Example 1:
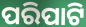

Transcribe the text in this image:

ପରିପାଟି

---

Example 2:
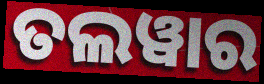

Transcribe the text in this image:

ତଲୱାର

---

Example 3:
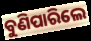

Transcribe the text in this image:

ବୁଣିପାରିଲେ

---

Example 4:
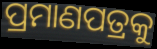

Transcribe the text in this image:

ପ୍ରମାଣପତ୍ରକୁ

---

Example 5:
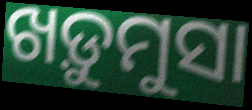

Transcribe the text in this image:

ଖଡ଼ୁମୁସା